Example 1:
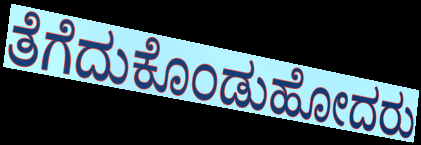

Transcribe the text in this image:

ತೆಗೆದುಕೊಂಡುಹೋದರು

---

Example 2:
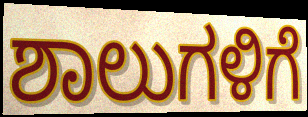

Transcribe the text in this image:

ಶಾಲುಗಳಿಗೆ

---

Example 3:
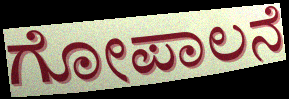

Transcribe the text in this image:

ಗೋಪಾಲನೆ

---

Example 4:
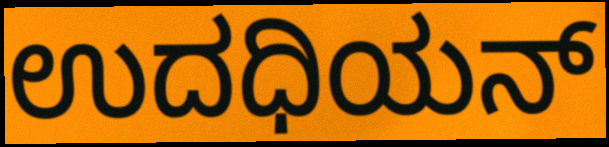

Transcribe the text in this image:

ಉದಧಿಯನ್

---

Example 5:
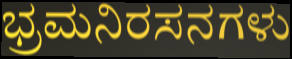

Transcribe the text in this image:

ಭ್ರಮನಿರಸನಗಳು